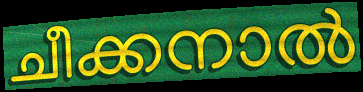
ചീക്കനാൽ